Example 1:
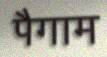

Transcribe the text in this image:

पैगाम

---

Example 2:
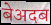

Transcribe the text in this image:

बेअदब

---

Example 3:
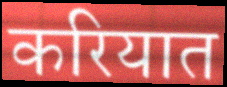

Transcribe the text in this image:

करियात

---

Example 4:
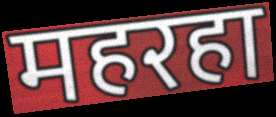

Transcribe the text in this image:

महरहा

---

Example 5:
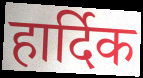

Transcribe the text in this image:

हार्दिक